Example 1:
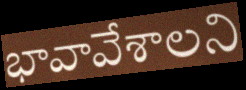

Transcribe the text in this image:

భావావేశాలని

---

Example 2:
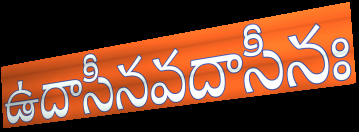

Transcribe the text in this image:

ఉదాసీనవదాసీనః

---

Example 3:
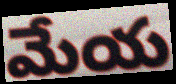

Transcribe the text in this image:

మేయ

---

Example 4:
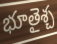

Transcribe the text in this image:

భూతైశ్చ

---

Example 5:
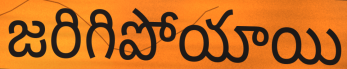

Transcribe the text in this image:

జరిగిపోయాయి